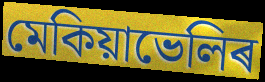
মেকিয়াভেলিৰ